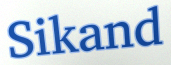
Sikand